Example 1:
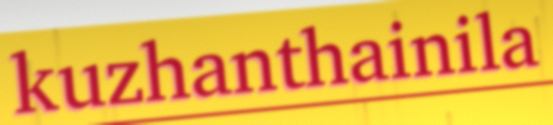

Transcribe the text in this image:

kuzhanthainila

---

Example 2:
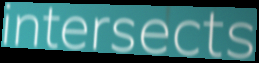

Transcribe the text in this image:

intersects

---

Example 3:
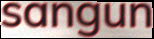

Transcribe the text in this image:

sangun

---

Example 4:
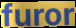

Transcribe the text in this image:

furor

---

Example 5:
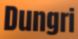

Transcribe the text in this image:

Dungri